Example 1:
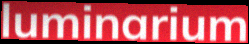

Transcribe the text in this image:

luminarium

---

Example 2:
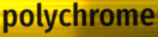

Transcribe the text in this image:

polychrome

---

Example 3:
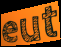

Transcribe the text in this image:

eut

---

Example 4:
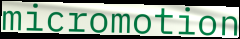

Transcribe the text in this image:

micromotion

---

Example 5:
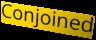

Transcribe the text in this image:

Conjoined